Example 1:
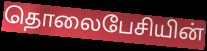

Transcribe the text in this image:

தொலைபேசியின்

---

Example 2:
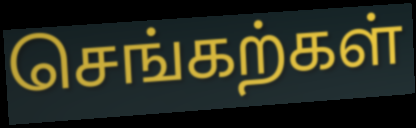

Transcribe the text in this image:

செங்கற்கள்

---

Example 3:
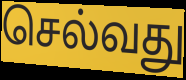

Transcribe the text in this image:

செல்வது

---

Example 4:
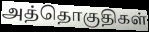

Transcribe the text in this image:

அத்தொகுதிகள்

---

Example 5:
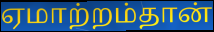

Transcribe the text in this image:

ஏமாற்றம்தான்